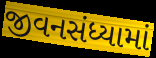
જીવનસંધ્યામાં